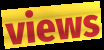
views